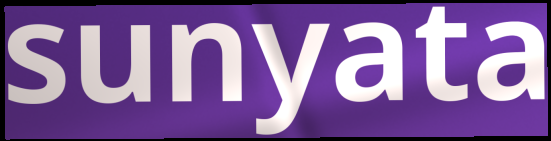
sunyata